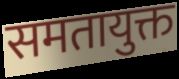
समतायुक्त